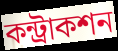
কন্ট্রাকশন